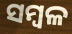
ସମ୍ବଳ